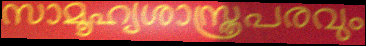
സാമൂഹ്യശാസ്ത്രപരവും